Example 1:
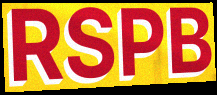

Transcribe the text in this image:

RSPB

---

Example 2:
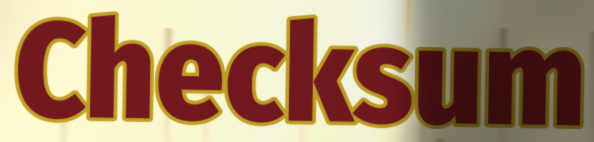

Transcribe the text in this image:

Checksum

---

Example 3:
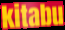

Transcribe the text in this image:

kitabu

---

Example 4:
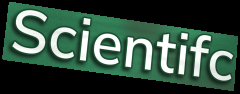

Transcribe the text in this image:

Scientifc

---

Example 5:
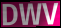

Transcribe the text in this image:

DWV